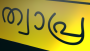
ത്വാപ്ര